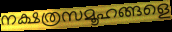
നക്ഷത്രസമൂഹങ്ങളെ